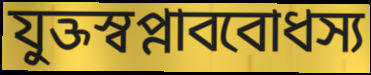
যুক্তস্বপ্নাববোধস্য